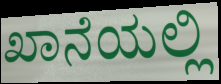
ಖಾನೆಯಲ್ಲಿ